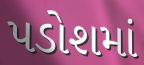
પડોશમાં